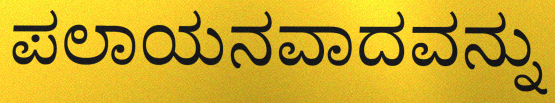
ಪಲಾಯನವಾದವನ್ನು